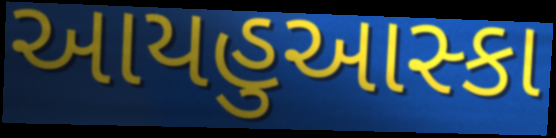
આયહુઆસ્કા